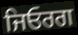
ਜਿਓਰਗ